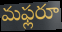
మఫ్లరూ